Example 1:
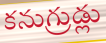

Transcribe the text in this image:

కనుగ్రుడ్లు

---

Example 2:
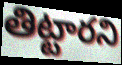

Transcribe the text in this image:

తిట్టారని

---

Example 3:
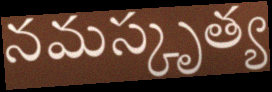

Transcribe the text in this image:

నమస్కృత్య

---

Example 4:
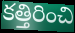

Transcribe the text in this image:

కత్తిరించి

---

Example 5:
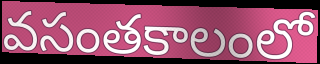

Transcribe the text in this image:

వసంతకాలంలో